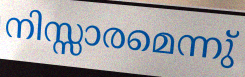
നിസ്സാരമെന്നു്